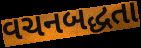
વચનબદ્ધતા